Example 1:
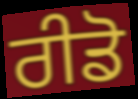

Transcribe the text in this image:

ਰੀਡੋ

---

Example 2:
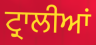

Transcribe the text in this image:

ਟ੍ਰਾਲੀਆਂ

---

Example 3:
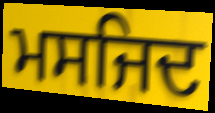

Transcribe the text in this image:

ਮਸਜਿਦ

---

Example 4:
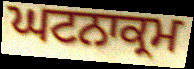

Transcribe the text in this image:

ਘਟਨਾਕ੍ਰਮ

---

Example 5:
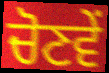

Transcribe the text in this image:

ਚੋਣਵੇਂ